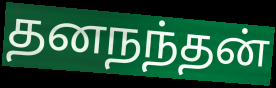
தனநந்தன்